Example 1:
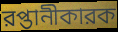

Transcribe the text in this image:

রপ্তানীকারক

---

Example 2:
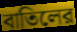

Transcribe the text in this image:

বাতিলের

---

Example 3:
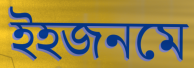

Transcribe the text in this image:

ইহজনমে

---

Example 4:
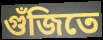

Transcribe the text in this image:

গুঁজিতে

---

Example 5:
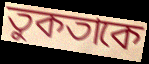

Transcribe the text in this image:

তুকতাকে